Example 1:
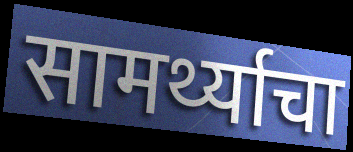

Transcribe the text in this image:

सामर्थ्याचा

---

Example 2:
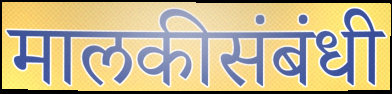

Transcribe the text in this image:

मालकीसंबंधी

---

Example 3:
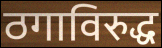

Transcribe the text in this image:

ठगाविरुद्ध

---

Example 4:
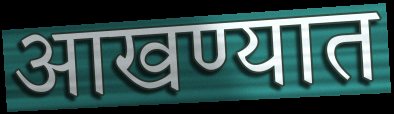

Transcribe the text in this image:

आखण्यात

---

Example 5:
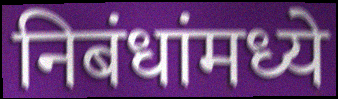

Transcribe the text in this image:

निबंधांमध्ये